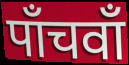
पाँचवाँ